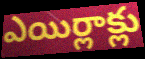
ఎయిర్లాక్లు